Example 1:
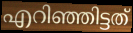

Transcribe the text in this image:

എറിഞ്ഞിട്ടത്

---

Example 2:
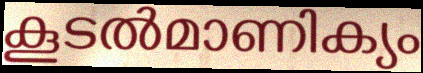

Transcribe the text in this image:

കൂടൽമാണിക്യം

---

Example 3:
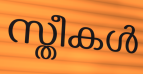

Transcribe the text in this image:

സ്തീകൾ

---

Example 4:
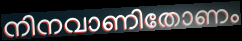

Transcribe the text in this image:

നിനവാണിതോണം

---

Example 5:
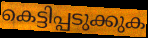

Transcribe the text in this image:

കെട്ടിപ്പടുക്കുക